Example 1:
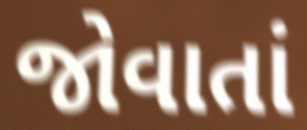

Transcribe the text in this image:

જોવાતાં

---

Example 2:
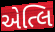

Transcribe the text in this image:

એત્લિ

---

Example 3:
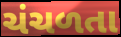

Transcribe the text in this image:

ચંચળતા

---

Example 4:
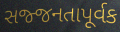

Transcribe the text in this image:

સજ્જનતાપૂર્વક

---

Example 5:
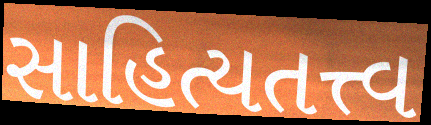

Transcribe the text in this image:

સાહિત્યતત્ત્વ